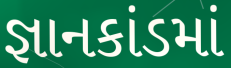
જ્ઞાનકાંડમાં